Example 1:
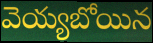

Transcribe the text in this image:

వెయ్యబోయిన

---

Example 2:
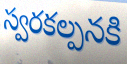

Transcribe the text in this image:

స్వరకల్పనకి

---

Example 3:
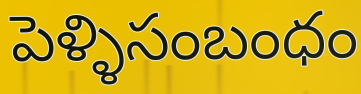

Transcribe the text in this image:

పెళ్ళిసంబంధం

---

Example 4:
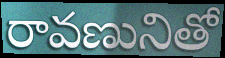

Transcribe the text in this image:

రావణునితో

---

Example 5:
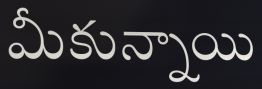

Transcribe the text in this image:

మీకున్నాయి